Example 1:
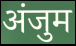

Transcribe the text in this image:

अंजुम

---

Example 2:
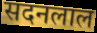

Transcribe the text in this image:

सदनलाल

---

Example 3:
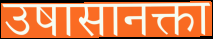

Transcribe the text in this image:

उषासानक्ता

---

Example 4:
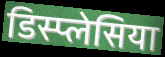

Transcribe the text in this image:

डिस्प्लेसिया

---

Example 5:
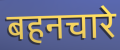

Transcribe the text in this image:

बहनचारे